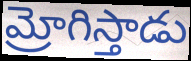
మ్రోగిస్తాడు